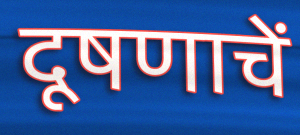
दूषणाचें